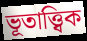
ভূতাত্ত্বিক